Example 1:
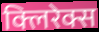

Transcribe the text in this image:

क्लिरेक्स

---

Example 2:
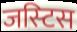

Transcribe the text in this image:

जस्‍टिस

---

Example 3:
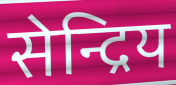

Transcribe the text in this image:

सेन्द्रिय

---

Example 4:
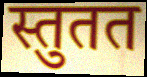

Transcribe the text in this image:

स्तुतत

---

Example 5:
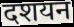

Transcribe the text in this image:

दशयन